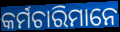
କର୍ମଚାରିମାନେ